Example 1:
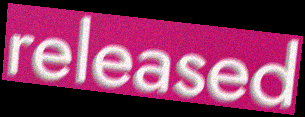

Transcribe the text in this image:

released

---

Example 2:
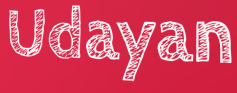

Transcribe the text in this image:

Udayan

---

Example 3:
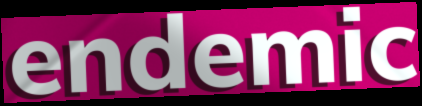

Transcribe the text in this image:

endemic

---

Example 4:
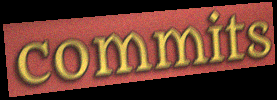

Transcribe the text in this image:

commits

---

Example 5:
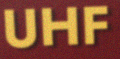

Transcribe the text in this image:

UHF